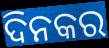
ଦିନକର